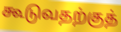
கூடுவதற்குத்